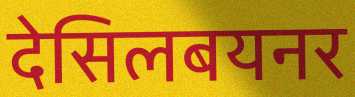
देसिलबयनर